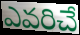
ఎవరిచే